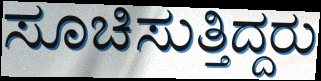
ಸೂಚಿಸುತ್ತಿದ್ದರು